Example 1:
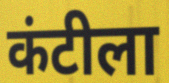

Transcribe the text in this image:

कंटीला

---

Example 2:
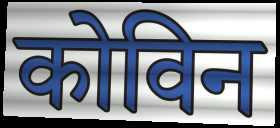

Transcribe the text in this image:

कोविन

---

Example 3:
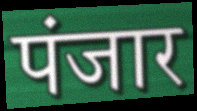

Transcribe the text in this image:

पंजार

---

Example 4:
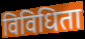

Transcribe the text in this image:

विविधिता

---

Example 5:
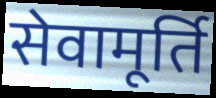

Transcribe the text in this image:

सेवामूर्ति